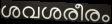
ശവശരീരം